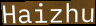
Haizhu